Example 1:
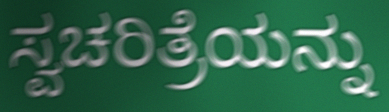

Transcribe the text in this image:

ಸ್ವಚರಿತ್ರೆಯನ್ನು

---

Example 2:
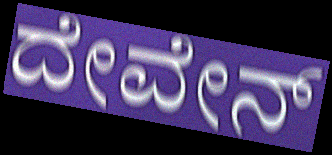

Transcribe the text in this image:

ದೇವೇನ್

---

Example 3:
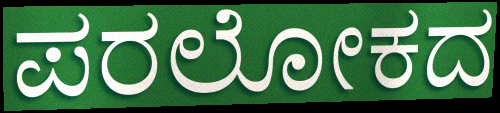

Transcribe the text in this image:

ಪರಲೋಕದ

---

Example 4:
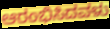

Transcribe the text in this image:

ಆರಂಭಿಸಿದವಳು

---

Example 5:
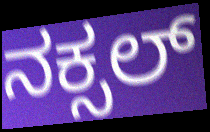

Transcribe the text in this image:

ನಕ್ಸಲ್